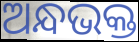
ଅନ୍ଧଭକ୍ତ